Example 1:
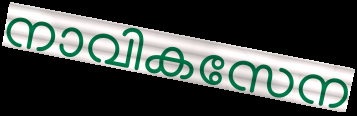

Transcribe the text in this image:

നാവികസേന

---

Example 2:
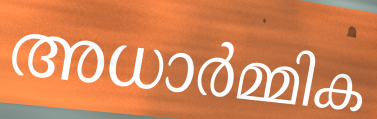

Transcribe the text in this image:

അധാർമ്മിക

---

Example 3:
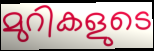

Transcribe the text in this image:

മുറികളുടെ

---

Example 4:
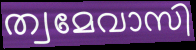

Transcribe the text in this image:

ത്വമേവാസി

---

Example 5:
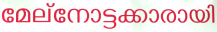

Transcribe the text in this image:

മേല്നോട്ടക്കാരായി